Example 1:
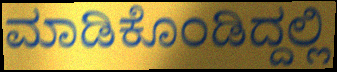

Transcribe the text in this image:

ಮಾಡಿಕೊಂಡಿದ್ದಲ್ಲಿ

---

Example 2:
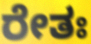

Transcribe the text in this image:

ರೇತಃ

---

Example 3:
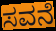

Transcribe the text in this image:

ಸವನೆ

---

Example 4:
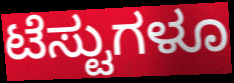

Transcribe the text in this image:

ಟೆಸ್ಟುಗಳೂ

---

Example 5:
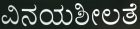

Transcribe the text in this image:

ವಿನಯಶೀಲತೆ